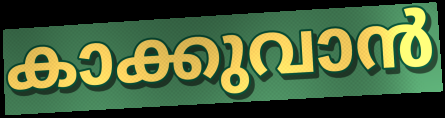
കാക്കുവാൻ